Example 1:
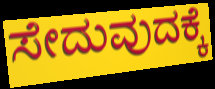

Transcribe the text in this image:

ಸೇದುವುದಕ್ಕೆ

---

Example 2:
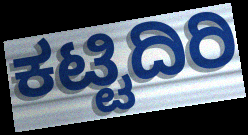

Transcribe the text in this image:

ಕಟ್ಟಿದಿರಿ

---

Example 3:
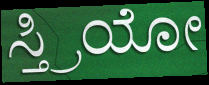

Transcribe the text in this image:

ಸ್ತ್ರಿಯೋ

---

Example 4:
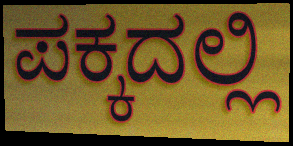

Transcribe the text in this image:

ಪಕ್ಕದಲ್ಲಿ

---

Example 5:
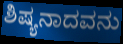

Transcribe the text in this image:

ಶಿಷ್ಯನಾದವನು